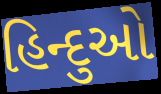
હિન્દુઓ